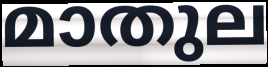
മാതുല